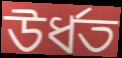
উৰ্ধত